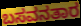
ಬಸವನತಾರ